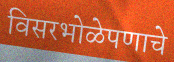
विसरभोळेपणाचे